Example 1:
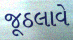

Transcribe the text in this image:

જૂઠલાવે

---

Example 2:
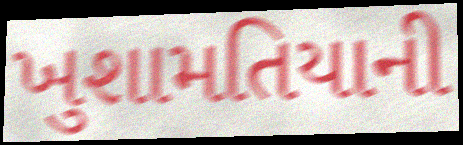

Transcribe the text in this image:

ખુશામતિયાની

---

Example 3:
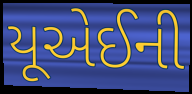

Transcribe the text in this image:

યૂએઈની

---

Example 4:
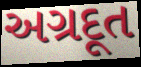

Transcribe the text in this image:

અગ્રદૂત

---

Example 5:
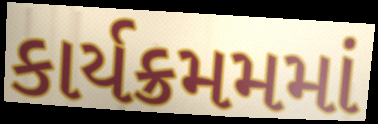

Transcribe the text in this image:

કાર્યક્રમમમાં